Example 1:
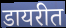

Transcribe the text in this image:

डायरीत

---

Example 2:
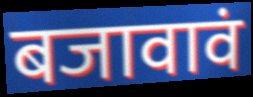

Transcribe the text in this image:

बजावावं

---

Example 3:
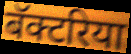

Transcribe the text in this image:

बॅक्टरिया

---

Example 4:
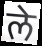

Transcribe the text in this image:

ले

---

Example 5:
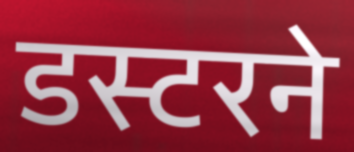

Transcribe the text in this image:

डस्टरने